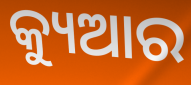
କ୍ୟୁଆର